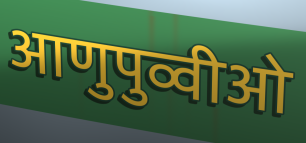
आणुपुव्वीओ